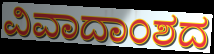
ವಿವಾದಾಂಶದ